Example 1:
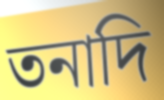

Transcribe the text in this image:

তনাদি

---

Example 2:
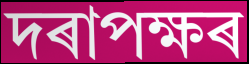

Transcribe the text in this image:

দৰাপক্ষৰ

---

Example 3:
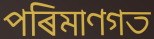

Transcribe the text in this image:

পৰিমাণগত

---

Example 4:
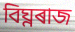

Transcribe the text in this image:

বিঘ্নৰাজ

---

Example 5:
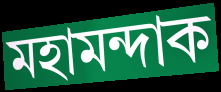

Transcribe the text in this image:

মহামন্দাক